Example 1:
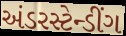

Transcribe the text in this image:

અંડરસ્ટેન્ડીંગ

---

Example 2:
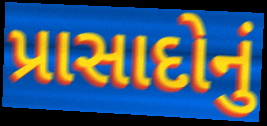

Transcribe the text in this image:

પ્રાસાદોનું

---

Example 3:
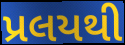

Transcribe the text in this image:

પ્રલયથી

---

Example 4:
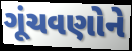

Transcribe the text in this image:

ગૂંચવણોને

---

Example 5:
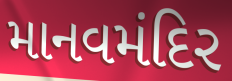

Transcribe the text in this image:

માનવમંદિર